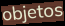
objetos